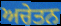
ਅਚੇਤਨ